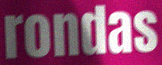
rondas